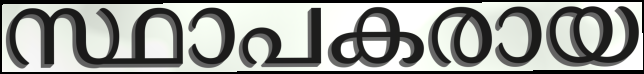
സ്ഥാപകരായ